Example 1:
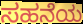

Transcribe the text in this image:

ಸಹನೆಯ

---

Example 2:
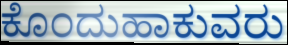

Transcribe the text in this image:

ಕೊಂದುಹಾಕುವರು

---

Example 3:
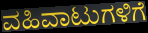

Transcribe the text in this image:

ವಹಿವಾಟುಗಳಿಗೆ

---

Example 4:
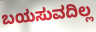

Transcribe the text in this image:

ಬಯಸುವದಿಲ್ಲ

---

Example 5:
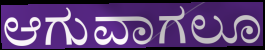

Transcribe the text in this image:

ಆಗುವಾಗಲೂ